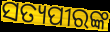
ସତ୍ୟପୀରଙ୍କ